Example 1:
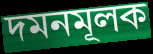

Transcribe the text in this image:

দমনমূলক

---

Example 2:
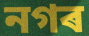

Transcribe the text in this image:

নগৰ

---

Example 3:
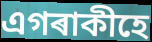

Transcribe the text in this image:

এগৰাকীহে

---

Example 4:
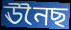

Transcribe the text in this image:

ঊনৈছ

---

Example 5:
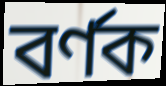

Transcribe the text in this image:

বৰ্ণক